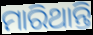
ମାରିଥାନ୍ତି